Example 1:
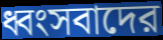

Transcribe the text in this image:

ধ্বংসবাদের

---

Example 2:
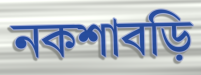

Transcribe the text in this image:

নকশাবড়ি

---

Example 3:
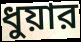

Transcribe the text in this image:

ধুয়ার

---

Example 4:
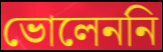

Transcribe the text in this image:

ভোলেননি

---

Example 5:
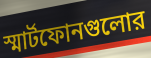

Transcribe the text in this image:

স্মার্টফোনগুলোর